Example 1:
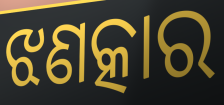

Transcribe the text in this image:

ଝଣତ୍କାର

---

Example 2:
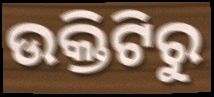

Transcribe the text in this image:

ଉକ୍ତିଟିରୁ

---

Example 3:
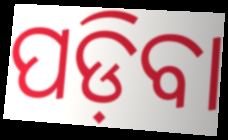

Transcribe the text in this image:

ପଡ଼ିବା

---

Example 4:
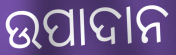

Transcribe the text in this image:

ଉପାଦାନ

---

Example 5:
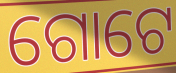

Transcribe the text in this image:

ଗୋଟେ